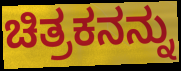
ಚಿತ್ರಕನನ್ನು